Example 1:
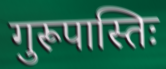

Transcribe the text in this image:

गुरूपास्तिः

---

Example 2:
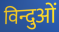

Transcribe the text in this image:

विन्दुओं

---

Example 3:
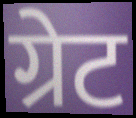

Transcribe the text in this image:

ग्रेट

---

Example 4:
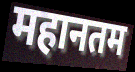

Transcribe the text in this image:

महानतम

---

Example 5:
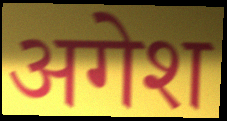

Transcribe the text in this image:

अगेश